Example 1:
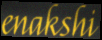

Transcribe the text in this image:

enakshi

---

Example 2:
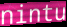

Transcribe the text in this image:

nintu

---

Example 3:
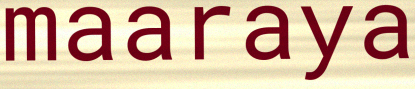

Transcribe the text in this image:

maaraya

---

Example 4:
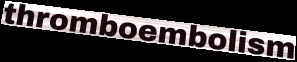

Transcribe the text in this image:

thromboembolism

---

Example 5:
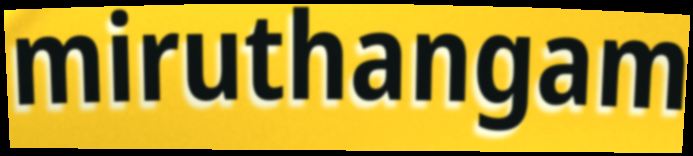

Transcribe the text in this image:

miruthangam